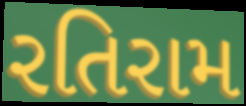
રતિરામ